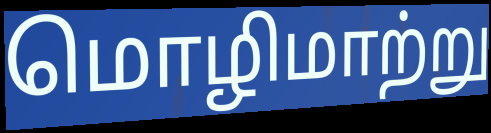
மொழிமாற்று